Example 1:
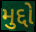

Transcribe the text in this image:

મુદ્દો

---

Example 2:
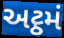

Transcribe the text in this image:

અટ્ઠમં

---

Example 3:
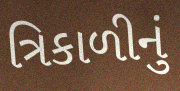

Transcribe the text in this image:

ત્રિકાળીનું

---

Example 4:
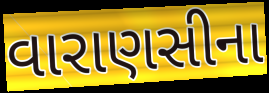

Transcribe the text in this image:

વારાણસીના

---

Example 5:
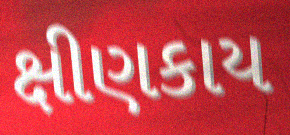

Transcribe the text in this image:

ક્ષીણકાય